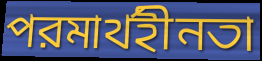
পরমার্থহীনতা